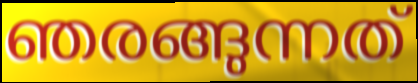
ഞരങ്ങുന്നത്